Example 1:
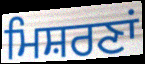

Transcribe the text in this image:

ਮਿਸ਼ਰਣਾਂ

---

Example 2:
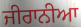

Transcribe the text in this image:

ਜੀਰਾਨੀਆ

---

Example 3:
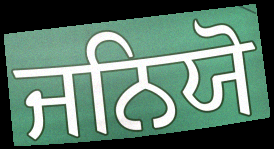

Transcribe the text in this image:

ਜਨਿਯੋ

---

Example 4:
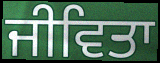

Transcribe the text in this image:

ਜੀਵਿਤਾ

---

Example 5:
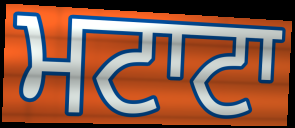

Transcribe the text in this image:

ਮਟਾਟਾ